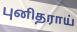
புனிதராய்